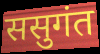
ससुगंत